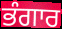
ਭੰਗਾਰ